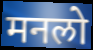
मनलो